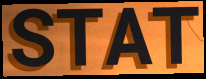
STAT